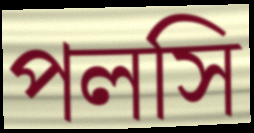
পলসি